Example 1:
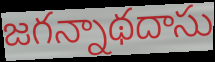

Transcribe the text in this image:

జగన్నాథదాసు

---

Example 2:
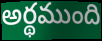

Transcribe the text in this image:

అర్థముంది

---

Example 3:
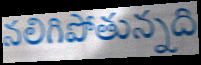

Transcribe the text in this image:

నలిగిపోతున్నది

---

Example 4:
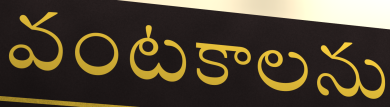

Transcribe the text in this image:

వంటకాలను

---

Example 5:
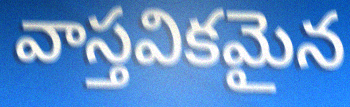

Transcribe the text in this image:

వాస్తవికమైన